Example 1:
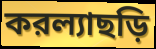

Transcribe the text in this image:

করল্যাছড়ি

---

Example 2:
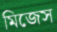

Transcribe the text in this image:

মিজেস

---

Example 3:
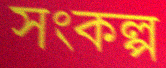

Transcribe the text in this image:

সংকল্প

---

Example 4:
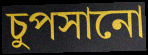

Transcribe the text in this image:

চুপসানো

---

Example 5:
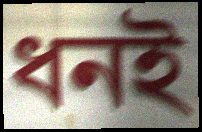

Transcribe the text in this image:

ধনই